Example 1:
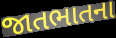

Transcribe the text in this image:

જાતભાતના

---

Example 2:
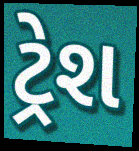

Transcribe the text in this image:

ટ્રેશ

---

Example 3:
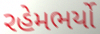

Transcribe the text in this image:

રહેમભર્યો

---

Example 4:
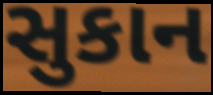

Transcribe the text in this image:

સુકાન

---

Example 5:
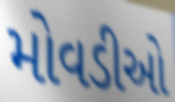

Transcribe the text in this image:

મોવડીઓ